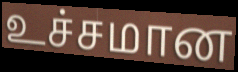
உச்சமான